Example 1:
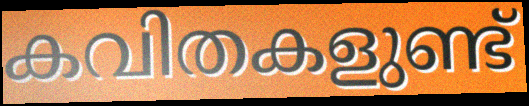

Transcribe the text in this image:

കവിതകളുണ്ട്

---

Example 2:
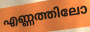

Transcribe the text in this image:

എണ്ണത്തിലോ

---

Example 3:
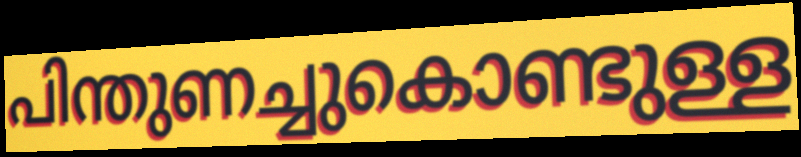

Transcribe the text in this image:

പിന്തുണച്ചുകൊണ്ടുള്ള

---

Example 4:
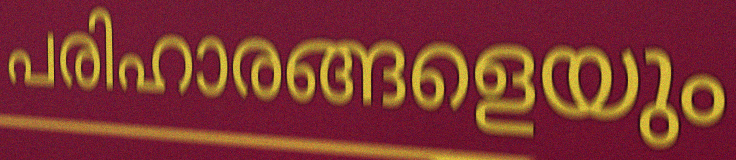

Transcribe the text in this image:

പരിഹാരങ്ങളെയും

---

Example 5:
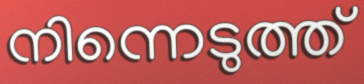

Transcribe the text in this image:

നിന്നെടുത്ത്